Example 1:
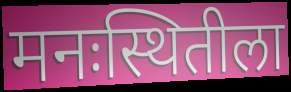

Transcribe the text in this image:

मनःस्थितीला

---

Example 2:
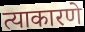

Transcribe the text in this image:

त्याकारणे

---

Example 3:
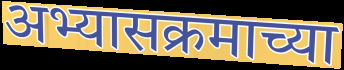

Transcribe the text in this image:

अभ्यासक्रमाच्या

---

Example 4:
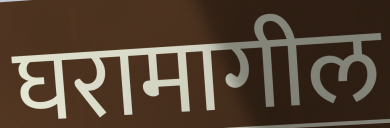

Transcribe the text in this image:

घरामागील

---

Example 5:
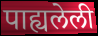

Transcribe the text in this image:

पाह्यलेली